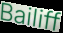
Bailiff